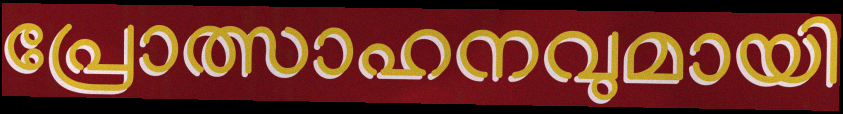
പ്രോത്സാഹനവുമായി